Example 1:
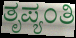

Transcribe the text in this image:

ತೃಪ್ಯಂತಿ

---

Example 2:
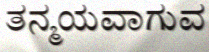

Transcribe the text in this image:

ತನ್ಮಯವಾಗುವ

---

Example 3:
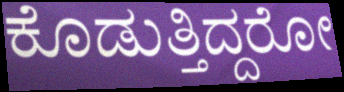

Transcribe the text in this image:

ಕೊಡುತ್ತಿದ್ದರೋ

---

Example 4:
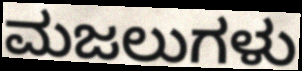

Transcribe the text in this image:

ಮಜಲುಗಳು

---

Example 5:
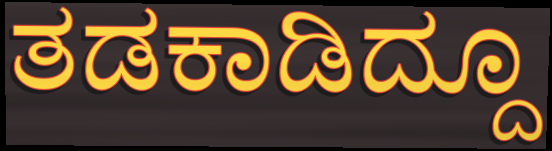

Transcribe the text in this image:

ತಡಕಾಡಿದ್ದೂ